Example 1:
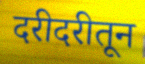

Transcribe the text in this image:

दरीदरीतून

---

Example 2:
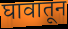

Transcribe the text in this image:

घावातून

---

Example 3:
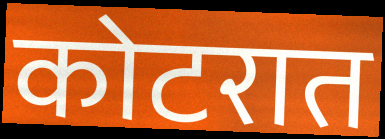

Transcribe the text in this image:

कोटरात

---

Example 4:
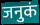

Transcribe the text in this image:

जनुकं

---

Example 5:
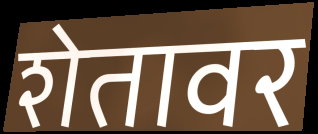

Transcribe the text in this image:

शेतावर